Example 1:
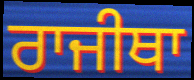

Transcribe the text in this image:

ਰਾਜੀਥਾ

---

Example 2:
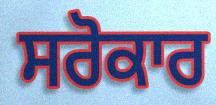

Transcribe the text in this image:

ਸਰੋਕਾਰ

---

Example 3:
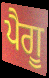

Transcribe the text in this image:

ਪੈਗੂ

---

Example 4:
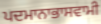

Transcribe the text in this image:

ਪਦਮਾਨਾਭਾਸਵਾਮੀ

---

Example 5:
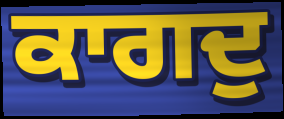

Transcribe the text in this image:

ਕਾਗਦੁ